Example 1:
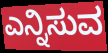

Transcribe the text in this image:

ಎನ್ನಿಸುವ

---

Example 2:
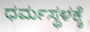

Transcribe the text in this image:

ಧರ್ಮಸ್ಥಳಕ್ಕೆ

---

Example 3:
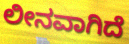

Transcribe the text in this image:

ಲೀನವಾಗಿದೆ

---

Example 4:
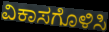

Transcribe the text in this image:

ವಿಕಾಸಗೊಳಿಸಿ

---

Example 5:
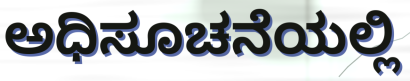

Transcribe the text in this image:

ಅಧಿಸೂಚನೆಯಲ್ಲಿ